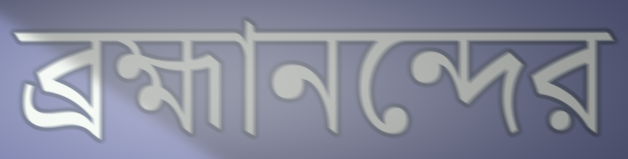
ব্রহ্মানন্দের